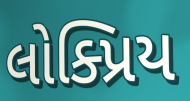
લોક્પ્રિય